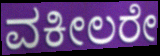
ವಕೀಲರೇ